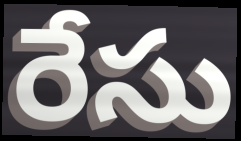
రేసు